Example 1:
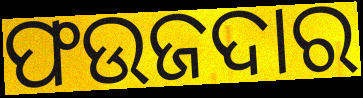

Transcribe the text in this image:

ଫଉଜଦାର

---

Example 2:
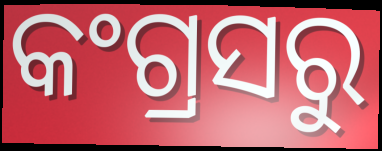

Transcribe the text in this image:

କଂଗ୍ରସରୁ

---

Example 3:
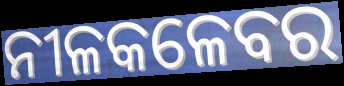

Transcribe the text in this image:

ନୀଳକଳେବର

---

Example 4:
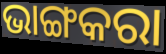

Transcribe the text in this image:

ଭାଙ୍ଗକରା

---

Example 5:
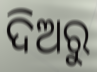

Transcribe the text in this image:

ଦିଅରୁ